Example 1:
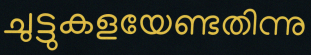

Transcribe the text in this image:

ചുട്ടുകളയേണ്ടതിന്നു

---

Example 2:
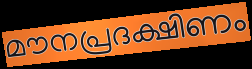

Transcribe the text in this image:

മൗനപ്രദക്ഷിണം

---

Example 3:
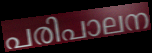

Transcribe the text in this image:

പരിപാലന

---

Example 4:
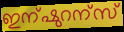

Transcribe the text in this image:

ഇന്ഷുറന്സ്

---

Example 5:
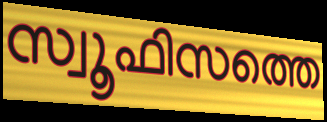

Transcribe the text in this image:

സ്വൂഫിസത്തെ